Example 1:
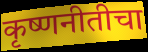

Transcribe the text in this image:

कृष्णनीतीचा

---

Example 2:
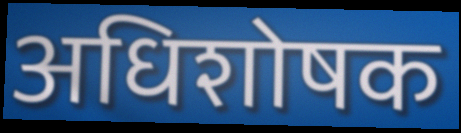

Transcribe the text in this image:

अधिशोषक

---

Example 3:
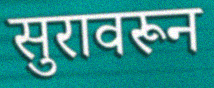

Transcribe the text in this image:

सुरावरून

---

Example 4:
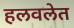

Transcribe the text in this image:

हलवलेत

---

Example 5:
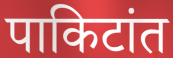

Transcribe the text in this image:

पाकिटांत